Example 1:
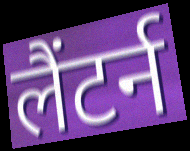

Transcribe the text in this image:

लैंटर्न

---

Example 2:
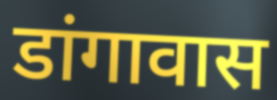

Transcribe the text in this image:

डांगावास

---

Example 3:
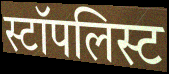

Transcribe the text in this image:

स्टॉपलिस्ट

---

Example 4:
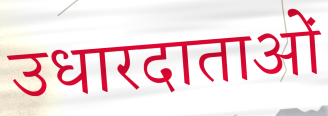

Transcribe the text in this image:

उधारदाताओं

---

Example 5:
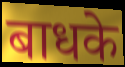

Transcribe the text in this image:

बाधके